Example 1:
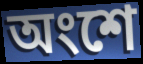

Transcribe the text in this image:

অংশে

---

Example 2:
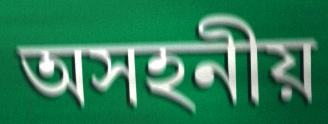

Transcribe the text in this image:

অসহনীয়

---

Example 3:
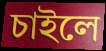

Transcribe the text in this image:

চাইলে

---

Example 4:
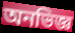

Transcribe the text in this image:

অনভিজ্ঞ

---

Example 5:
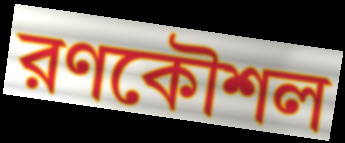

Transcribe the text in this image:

রণকৌশল